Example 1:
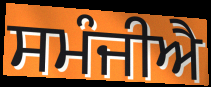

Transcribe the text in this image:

ਸਮੰਜੀਐ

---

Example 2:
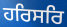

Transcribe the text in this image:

ਹਰਿਸਰਿ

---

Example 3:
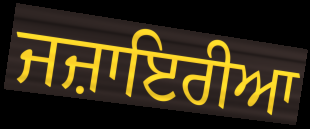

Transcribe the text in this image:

ਜਜ਼ਾਇਰੀਆ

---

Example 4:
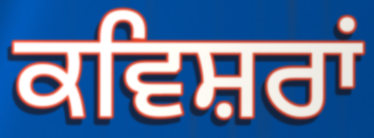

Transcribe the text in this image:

ਕਵਿਸ਼ਰਾਂ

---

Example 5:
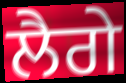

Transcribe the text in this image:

ਲੈਗੇ